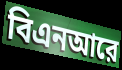
বিএনআরে